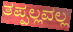
ತಪ್ಪಲ್ಲವಲ್ಲ